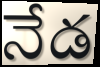
నేడ